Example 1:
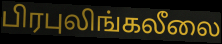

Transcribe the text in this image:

பிரபுலிங்கலீலை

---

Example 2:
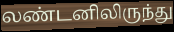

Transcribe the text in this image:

லண்டனிலிருந்து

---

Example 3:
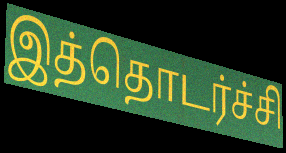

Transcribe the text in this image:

இத்தொடர்ச்சி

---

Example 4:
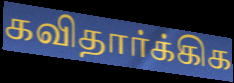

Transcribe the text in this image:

கவிதார்க்கிக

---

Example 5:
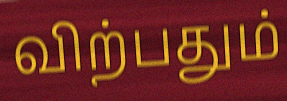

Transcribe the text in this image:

விற்பதும்